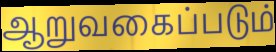
ஆறுவகைப்படும்